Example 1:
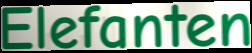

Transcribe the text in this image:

Elefanten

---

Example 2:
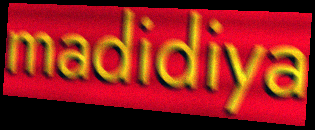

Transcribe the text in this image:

madidiya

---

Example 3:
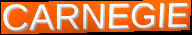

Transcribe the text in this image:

CARNEGIE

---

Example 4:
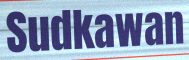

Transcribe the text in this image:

Sudkawan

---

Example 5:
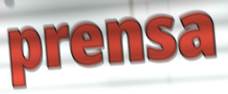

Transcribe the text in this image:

prensa